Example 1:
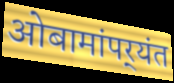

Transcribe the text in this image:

ओबामांपर्यंत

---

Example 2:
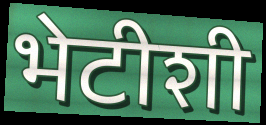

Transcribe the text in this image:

भेटीशी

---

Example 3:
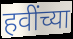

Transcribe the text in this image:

हवींच्या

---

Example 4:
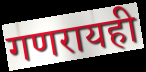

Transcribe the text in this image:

गणरायही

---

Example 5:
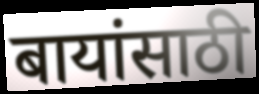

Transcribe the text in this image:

बायांसाठी